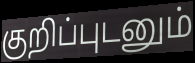
குறிப்புடனும்